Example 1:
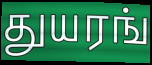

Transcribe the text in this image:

துயரங்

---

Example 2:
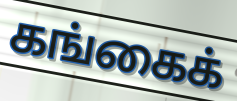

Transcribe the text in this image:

கங்கைக்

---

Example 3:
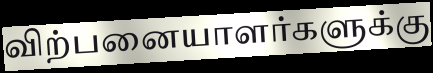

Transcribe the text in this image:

விற்பனையாளர்களுக்கு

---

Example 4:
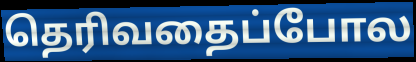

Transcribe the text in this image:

தெரிவதைப்போல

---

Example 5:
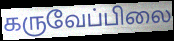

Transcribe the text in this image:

கருவேப்பிலை